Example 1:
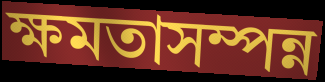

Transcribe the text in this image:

ক্ষমতাসম্পন্ন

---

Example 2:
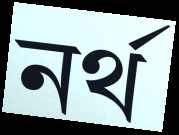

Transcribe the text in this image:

নৰ্থ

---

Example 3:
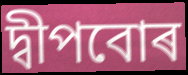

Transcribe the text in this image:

দ্বীপবোৰ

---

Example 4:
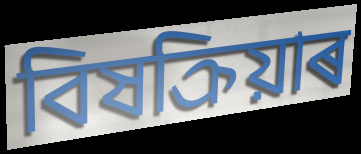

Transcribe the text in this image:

বিষক্ৰিয়াৰ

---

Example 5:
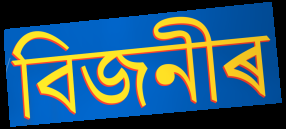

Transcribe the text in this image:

বিজনীৰ